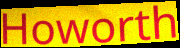
Howorth